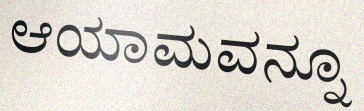
ಆಯಾಮವನ್ನೂ